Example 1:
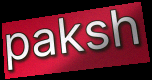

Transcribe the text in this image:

paksh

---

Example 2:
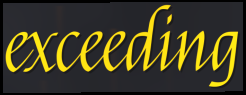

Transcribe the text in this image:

exceeding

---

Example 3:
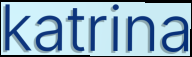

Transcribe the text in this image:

katrina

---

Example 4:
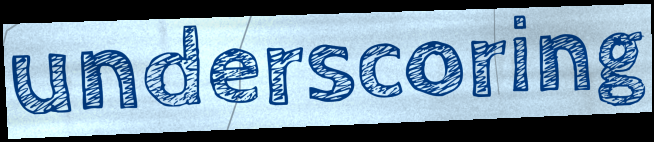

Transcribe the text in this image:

underscoring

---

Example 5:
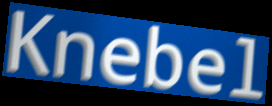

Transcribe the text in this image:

Knebel